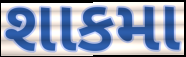
શાકમા